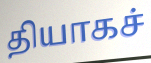
தியாகச்